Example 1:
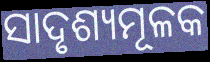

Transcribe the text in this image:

ସାଦୃଶ୍ୟମୂଳକ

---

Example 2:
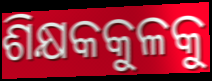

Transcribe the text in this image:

ଶିକ୍ଷକକୁଳକୁ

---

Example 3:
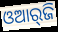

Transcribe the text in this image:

ଓଆର୍‌ଜି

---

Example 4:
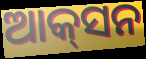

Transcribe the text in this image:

ଆକ୍‌ସନ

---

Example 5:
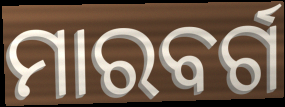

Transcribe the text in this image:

ମାରବର୍ଗ